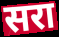
सरा